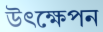
উৎক্ষেপন